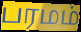
பரமம்